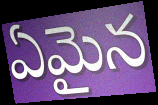
ఏమైన